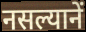
नसल्यानें